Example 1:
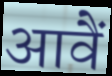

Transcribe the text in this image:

आवैं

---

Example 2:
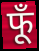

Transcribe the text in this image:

फूँ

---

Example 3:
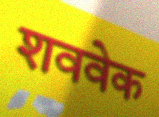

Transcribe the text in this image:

शववेक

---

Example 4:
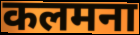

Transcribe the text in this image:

कलमना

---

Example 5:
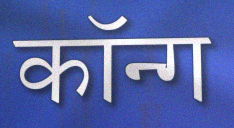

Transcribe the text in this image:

कॉन्ग